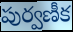
పుర్వణీక